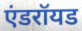
एंडरॉयड